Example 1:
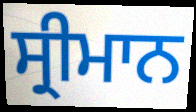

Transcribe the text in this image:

ਸ੍ਰੀਮਾਨ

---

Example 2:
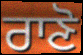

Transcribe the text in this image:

ਰਾਣੋ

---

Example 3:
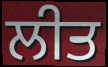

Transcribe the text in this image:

ਲੀਤ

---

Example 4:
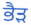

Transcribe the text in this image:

ਭੈੜ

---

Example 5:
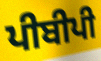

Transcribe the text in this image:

ਪੀਬੀਪੀ